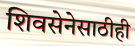
शिवसेनेसाठीही